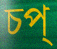
চপ্